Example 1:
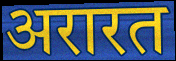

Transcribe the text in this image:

अरारत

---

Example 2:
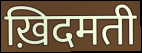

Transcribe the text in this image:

ख़िदमती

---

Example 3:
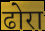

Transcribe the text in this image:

ढोरा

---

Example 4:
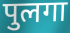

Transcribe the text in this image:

पुलगा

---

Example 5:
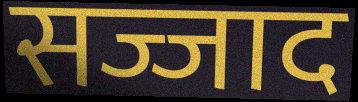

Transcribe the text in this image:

सज्‍जाद